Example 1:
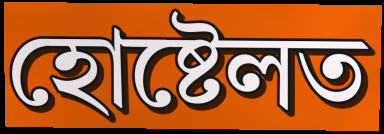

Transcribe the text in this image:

হোষ্টেলত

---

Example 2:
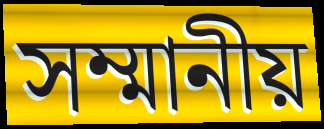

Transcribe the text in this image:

সম্মানীয়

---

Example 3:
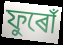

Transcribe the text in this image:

ফুৰোঁ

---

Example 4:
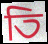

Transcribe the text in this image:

তি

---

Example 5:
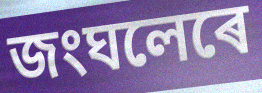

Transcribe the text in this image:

জংঘলেৰে